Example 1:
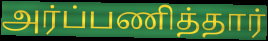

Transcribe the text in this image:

அர்ப்பணித்தார்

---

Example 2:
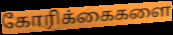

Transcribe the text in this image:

கோரிக்கைகளை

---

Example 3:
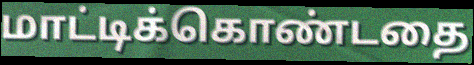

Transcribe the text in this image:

மாட்டிக்கொண்டதை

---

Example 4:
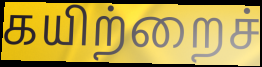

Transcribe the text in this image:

கயிற்றைச்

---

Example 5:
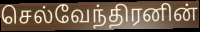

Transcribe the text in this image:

செல்வேந்திரனின்